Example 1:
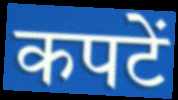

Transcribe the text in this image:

कपटें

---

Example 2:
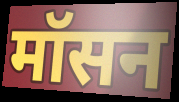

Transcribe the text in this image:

मॉसन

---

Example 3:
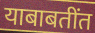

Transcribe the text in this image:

याबाबतींत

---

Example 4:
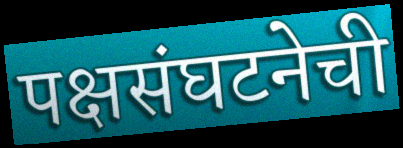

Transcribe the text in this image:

पक्षसंघटनेची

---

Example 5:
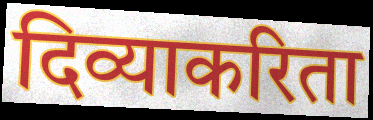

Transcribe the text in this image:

दिव्याकरिता